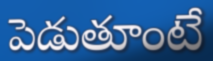
పెడుతూంటే